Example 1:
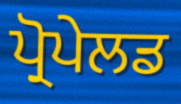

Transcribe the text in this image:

ਪ੍ਰੋਪੇਲਡ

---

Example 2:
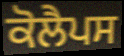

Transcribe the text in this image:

ਕੋਲੈਪਸ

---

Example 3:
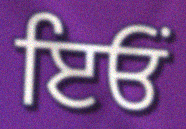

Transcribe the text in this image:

ਇਓਂ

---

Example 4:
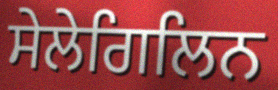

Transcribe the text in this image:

ਸੇਲੇਗਿਲਿਨ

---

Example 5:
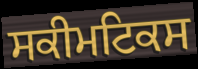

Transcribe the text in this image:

ਸਕੀਮਟਿਕਸ